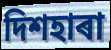
দিশহাৰা